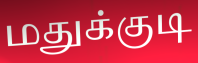
மதுக்குடி